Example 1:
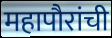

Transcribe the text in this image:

महापौरांची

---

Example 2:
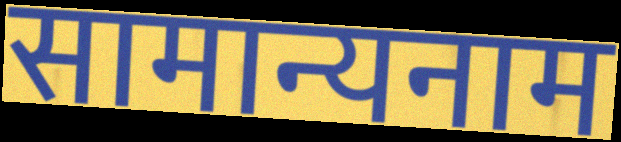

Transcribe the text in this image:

सामान्यनाम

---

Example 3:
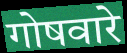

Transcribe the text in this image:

गोषवारे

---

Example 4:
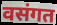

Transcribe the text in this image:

वसंगत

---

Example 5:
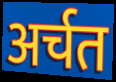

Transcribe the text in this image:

अर्चत